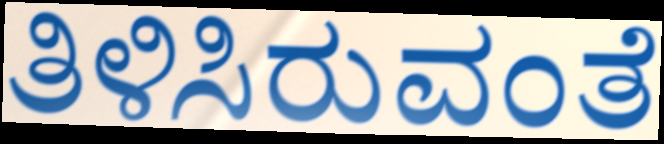
ತಿಳಿಸಿರುವಂತೆ